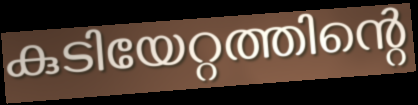
കുടിയേറ്റത്തിന്റെ